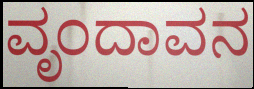
ವೃಂದಾವನ